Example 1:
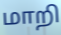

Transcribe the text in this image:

மாறி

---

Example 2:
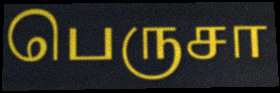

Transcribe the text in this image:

பெருசா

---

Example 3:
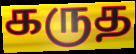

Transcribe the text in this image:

கருத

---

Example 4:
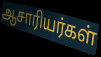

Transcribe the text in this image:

ஆசாரியர்கள்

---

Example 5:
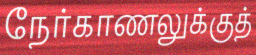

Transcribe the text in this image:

நேர்காணலுக்குத்